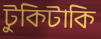
টুকিটাকি